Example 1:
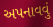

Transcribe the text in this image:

અપનાવવું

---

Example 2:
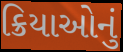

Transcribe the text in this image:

ક્રિયાઓનું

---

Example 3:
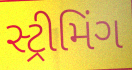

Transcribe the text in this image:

સ્ટ્રીમિંગ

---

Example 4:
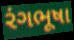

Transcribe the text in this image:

રંગભૂષા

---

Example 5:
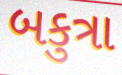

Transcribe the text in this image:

બકુત્રા